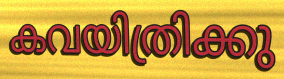
കവയിത്രിക്കു